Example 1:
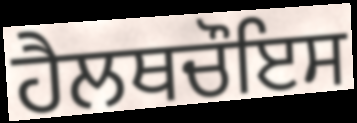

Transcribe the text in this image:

ਹੈਲਥਚੌਇਸ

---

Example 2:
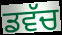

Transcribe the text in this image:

ਡਵੱਚ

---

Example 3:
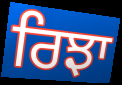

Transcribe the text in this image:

ਰਿਝਾ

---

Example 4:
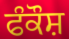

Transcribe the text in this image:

ਫੰਕੌਸ਼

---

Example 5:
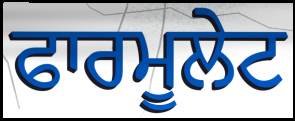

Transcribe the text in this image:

ਫਾਰਮੂਲੇਟ